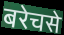
बरेचसे